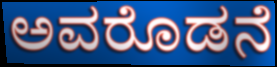
ಅವರೊಡನೆ